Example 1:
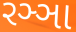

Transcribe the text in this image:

રઞ્ઞા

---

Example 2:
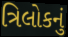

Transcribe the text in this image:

ત્રિલોકનું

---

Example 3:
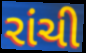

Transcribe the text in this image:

રાંચી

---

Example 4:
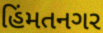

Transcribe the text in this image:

હિંમતનગર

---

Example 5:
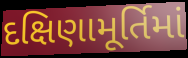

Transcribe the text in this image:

દક્ષિણામૂર્તિમાં